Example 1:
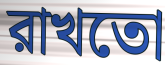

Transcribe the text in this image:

রাখতো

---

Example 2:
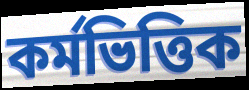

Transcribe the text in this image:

কর্মভিত্তিক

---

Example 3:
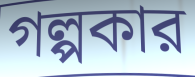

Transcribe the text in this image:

গল্পকার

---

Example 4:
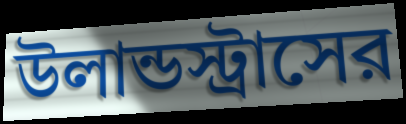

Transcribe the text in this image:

উলান্ডস্ট্রাসের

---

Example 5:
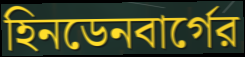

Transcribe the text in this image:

হিনডেনবার্গের